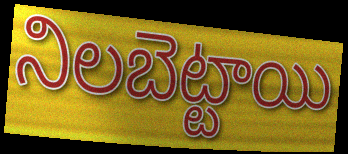
నిలబెట్టాయి